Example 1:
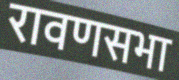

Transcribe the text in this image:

रावणसभा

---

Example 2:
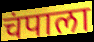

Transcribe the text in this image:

चंपाला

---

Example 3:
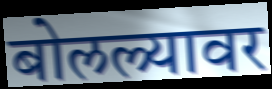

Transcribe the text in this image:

बोलल्यावर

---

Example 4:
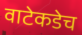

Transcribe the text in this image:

वाटेकडेच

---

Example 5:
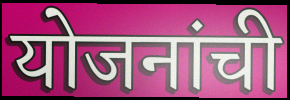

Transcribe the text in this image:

योजनांची